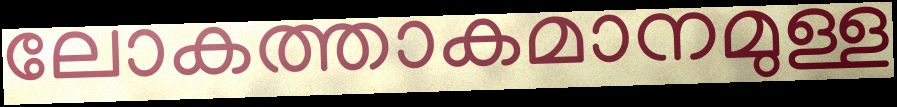
ലോകത്താകമാനമുള്ള